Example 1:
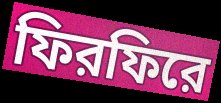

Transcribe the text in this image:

ফিরফিরে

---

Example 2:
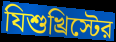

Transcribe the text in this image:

যিশুখ্রিস্টের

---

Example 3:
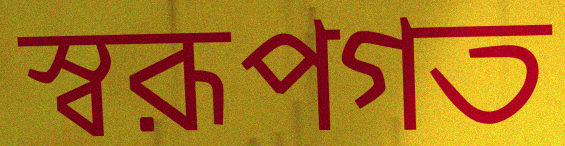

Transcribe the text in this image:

স্বরূপগত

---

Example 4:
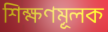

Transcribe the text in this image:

শিক্ষণমূলক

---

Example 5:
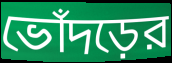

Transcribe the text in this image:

ভোঁদড়ের